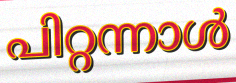
പിറ്റന്നാൾ